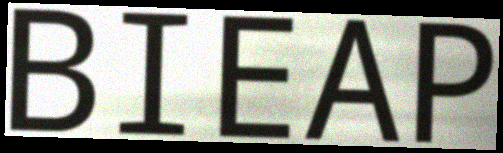
BIEAP